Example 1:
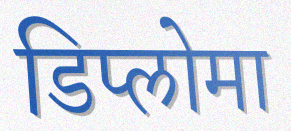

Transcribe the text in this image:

डिप्लोमा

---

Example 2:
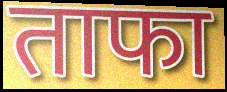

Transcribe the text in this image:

ताफा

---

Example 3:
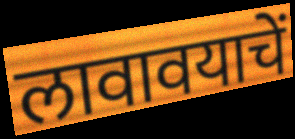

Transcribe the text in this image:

लावावयाचें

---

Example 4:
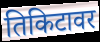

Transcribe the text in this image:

तिकिटावर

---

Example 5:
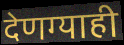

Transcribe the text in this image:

देणग्याही